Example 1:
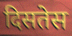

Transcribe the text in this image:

दिसतेस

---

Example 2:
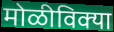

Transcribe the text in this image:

मोळीविक्या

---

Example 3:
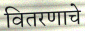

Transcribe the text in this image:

वितरणाचे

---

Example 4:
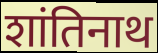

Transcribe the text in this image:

शांतिनाथ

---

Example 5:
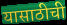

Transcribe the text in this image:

यासाठीची